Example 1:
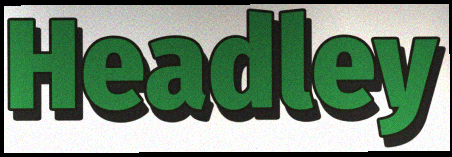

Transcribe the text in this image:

Headley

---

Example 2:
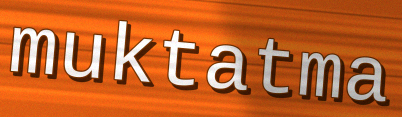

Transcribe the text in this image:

muktatma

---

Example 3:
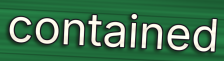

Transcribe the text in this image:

contained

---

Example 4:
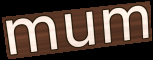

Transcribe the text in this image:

mum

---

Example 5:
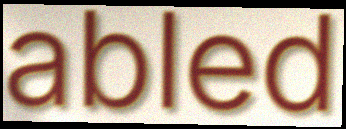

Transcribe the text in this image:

abled